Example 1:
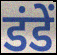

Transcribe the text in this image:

डंडें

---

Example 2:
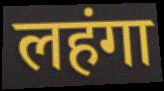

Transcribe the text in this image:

लहंगा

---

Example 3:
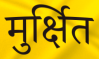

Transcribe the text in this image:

मुर्क्षित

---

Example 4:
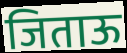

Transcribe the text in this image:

जिताऊ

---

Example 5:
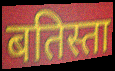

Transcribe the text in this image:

बतिस्ता